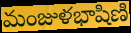
మంజుళభాషిణి